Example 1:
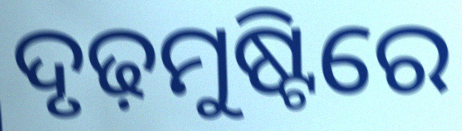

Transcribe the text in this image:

ଦୃଢ଼ମୁଷ୍ଟିରେ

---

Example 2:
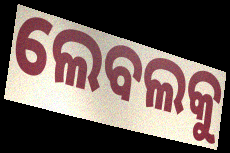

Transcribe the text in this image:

ଲେବଲକୁ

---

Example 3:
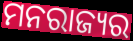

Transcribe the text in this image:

ମନରାଜ୍ୟର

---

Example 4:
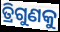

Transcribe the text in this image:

ତ୍ରିଗୁଣକୁ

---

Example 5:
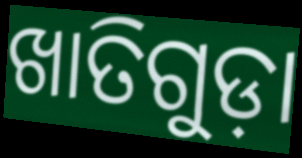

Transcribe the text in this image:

ଖାତିଗୁଡ଼ା